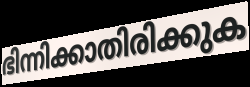
ഭിന്നിക്കാതിരിക്കുക